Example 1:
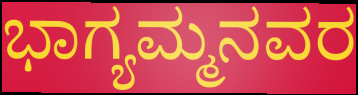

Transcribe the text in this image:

ಭಾಗ್ಯಮ್ಮನವರ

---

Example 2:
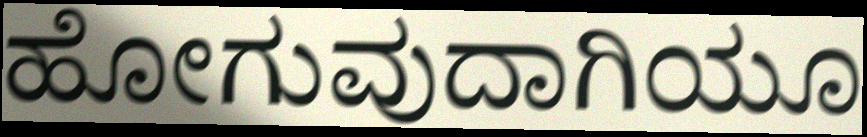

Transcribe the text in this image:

ಹೋಗುವುದಾಗಿಯೂ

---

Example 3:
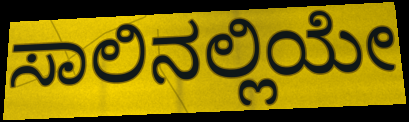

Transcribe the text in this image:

ಸಾಲಿನಲ್ಲಿಯೇ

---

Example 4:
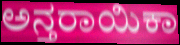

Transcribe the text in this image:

ಅನ್ತರಾಯಿಕಾ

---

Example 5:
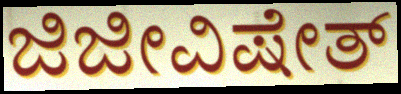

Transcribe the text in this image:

ಜಿಜೀವಿಷೇತ್